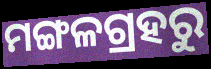
ମଙ୍ଗଳଗ୍ରହରୁ